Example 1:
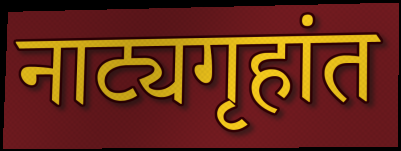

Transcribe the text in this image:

नाट्यगृहांत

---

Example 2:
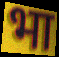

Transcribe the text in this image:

भा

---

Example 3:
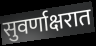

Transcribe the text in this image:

सुवर्णाक्षरात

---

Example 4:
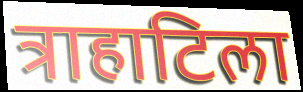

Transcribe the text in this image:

त्राहाटिला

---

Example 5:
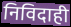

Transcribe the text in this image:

निविदाही